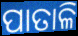
ପାତାଳି